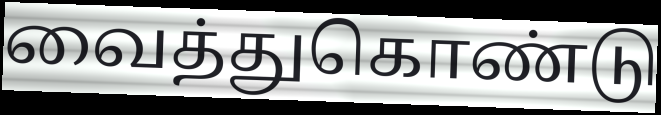
வைத்துகொண்டு